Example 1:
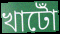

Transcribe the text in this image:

খাটোঁ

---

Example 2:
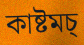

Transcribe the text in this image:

কাষ্টমচ্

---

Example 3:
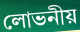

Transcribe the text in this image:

লোভনীয়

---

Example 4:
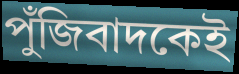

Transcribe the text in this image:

পুঁজিবাদকেই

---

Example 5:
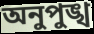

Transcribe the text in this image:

অনুপুঙ্খ